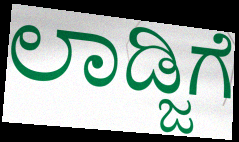
ಲಾಡ್ಜಿಗೆ